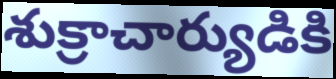
శుక్రాచార్యుడికి